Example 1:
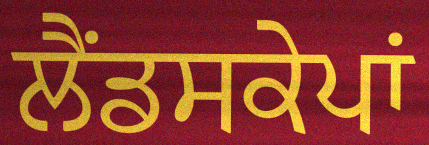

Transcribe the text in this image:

ਲੈਂਡਸਕੇਪਾਂ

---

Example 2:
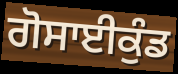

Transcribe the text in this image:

ਗੋਸਾਈਕੁੰਡ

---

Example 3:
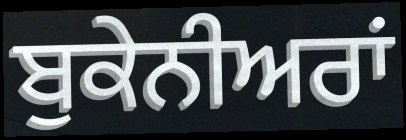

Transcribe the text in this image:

ਬੁਕੇਨੀਅਰਾਂ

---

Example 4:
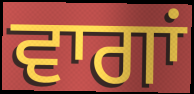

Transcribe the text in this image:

ਵਾਗਾਂ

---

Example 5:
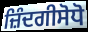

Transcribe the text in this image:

ਜ਼ਿੰਦਗੀਸੋਧੋ